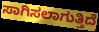
ಸಾಗಿಸಲಾಗುತ್ತಿದೆ